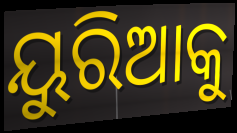
ୟୁରିଆକୁ